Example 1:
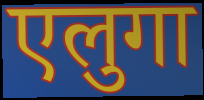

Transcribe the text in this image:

एलुगा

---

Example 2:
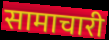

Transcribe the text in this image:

सामाचारी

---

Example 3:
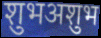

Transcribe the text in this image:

शुभअशुभ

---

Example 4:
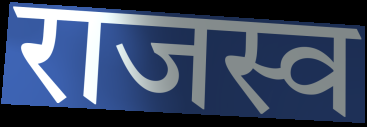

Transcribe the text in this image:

राजस्व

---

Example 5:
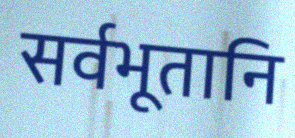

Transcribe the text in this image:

सर्वभूतानि